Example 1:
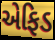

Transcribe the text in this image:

એફિડ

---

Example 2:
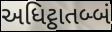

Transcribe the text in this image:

અધિટ્ઠાતબ્બં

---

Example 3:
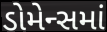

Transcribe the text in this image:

ડોમેન્સમાં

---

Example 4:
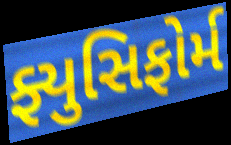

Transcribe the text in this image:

ફ્યુસિફોર્મ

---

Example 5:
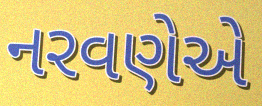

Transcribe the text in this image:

નરવણેએ